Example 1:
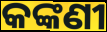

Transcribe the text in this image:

କଙ୍କଣୀ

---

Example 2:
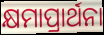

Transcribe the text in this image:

କ୍ଷମାପ୍ରାର୍ଥନା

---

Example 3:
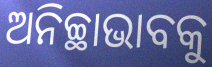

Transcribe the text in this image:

ଅନିଚ୍ଛାଭାବକୁ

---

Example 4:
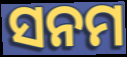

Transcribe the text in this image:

ସନମ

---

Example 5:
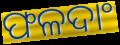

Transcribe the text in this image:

ଫଳଦାଂ